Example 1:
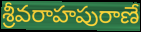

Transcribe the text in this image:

శ్రీవరాహపురాణే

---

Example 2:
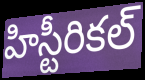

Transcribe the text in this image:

హిస్టీరికల్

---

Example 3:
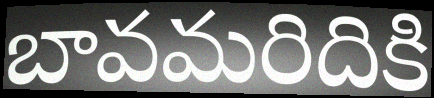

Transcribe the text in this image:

బావమరిదికి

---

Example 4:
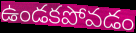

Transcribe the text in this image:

ఉండకపోవడం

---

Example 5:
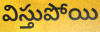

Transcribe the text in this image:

విస్తుపోయి